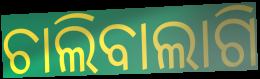
ଚାଲିବାଲାଗି